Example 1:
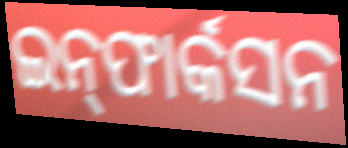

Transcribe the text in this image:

ଇନ୍‌ଫାର୍କସନ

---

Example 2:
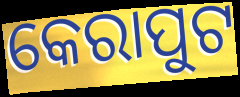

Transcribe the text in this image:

କେରାପୁଟ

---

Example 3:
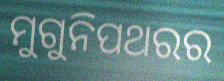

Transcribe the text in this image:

ମୁଗୁନିପଥରର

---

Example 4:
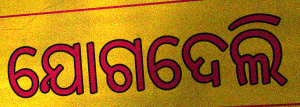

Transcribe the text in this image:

ଯୋଗଦେଲି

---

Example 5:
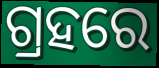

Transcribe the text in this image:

ଗ୍ରହରେ